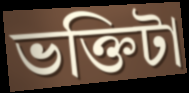
ভক্তিটা